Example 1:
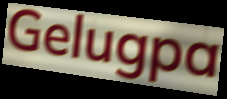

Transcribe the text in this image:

Gelugpa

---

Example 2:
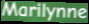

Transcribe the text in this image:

Marilynne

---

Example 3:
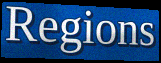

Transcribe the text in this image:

Regions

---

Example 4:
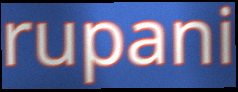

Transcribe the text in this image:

rupani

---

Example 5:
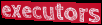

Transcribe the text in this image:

executors